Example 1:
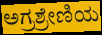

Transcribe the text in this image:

ಅಗ್ರಶ್ರೇಣಿಯ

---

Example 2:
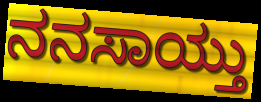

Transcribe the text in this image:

ನನಸಾಯ್ತು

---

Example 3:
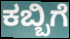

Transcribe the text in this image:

ಕಬ್ಬಿಗೆ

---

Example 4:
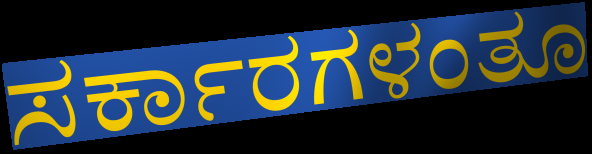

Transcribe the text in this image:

ಸರ್ಕಾರಗಳಂತೂ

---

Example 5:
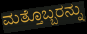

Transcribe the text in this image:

ಮತ್ತೊಬ್ಬರನ್ನು